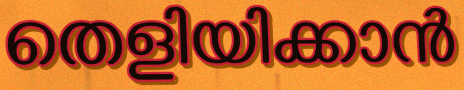
തെളിയിക്കാൻ